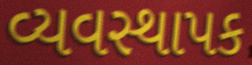
વ્યવસ્થાપક